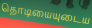
தொடியையுடைய